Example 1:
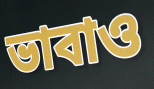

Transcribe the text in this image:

ভাবাও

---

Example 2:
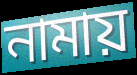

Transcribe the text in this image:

নামায়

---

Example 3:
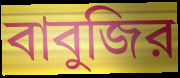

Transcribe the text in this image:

বাবুজির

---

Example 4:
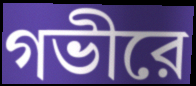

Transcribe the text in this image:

গভীরে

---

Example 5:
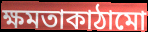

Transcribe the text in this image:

ক্ষমতাকাঠামো